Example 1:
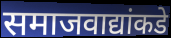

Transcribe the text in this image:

समाजवाद्यांकडे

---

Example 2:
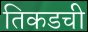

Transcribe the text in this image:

तिकडची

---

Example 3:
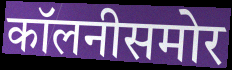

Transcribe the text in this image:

कॉलनीसमोर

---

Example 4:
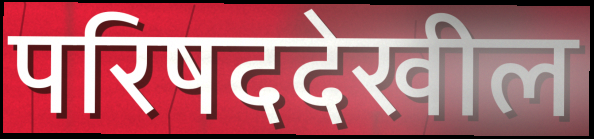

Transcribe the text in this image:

परिषददेखील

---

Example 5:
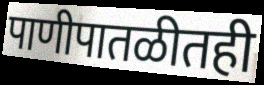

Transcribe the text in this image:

पाणीपातळीतही